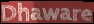
Dhaware